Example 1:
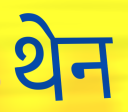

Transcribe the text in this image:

थेन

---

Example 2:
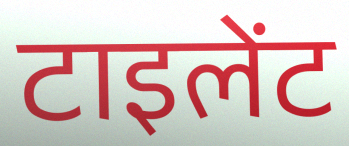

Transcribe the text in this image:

टाइलेंट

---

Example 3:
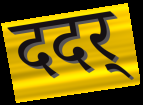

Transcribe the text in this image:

ददर्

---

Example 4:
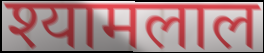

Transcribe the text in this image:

श्यामलाल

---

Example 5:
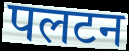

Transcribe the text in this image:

पलटन